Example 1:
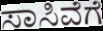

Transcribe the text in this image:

ಸಾಸಿವೆಗೆ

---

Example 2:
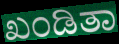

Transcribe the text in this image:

ಖಂಡಿತಾ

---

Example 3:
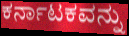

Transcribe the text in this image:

ಕರ್ನಾಟಕವನ್ನು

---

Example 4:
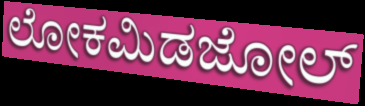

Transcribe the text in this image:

ಲೋಕಮಿಡಜೋಲ್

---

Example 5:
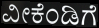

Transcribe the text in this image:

ವೀಕೆಂಡಿಗೆ